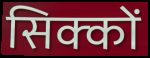
सिक्‍कों